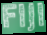
FIJI